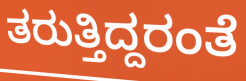
ತರುತ್ತಿದ್ದರಂತೆ